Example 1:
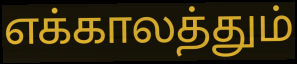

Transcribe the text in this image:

எக்காலத்தும்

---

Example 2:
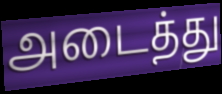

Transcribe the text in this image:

அடைத்து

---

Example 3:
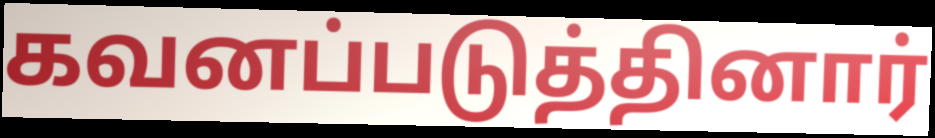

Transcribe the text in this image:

கவனப்படுத்தினார்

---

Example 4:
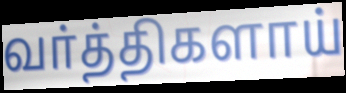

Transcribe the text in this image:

வர்த்திகளாய்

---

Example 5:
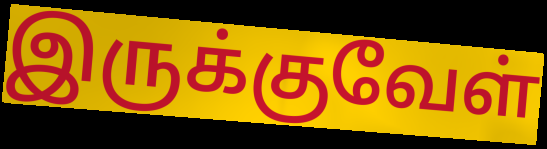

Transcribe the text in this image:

இருக்குவேள்